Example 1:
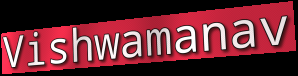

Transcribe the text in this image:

Vishwamanav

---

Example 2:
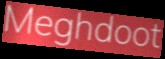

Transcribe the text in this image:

Meghdoot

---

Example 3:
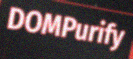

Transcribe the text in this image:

DOMPurify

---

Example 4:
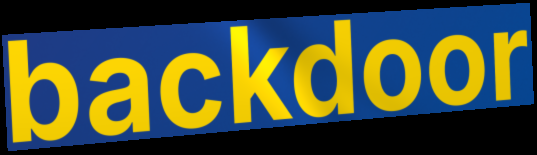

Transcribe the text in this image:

backdoor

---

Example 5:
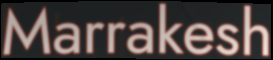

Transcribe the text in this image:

Marrakesh